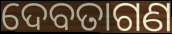
ଦେବତାଗଣ